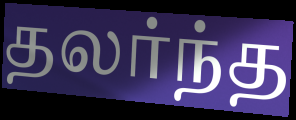
தலர்ந்த